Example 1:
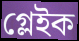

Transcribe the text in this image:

গ্লেইক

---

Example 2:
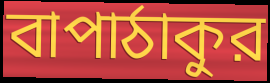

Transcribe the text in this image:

বাপাঠাকুর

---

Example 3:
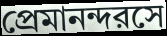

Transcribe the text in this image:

প্রেমানন্দরসে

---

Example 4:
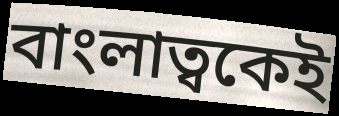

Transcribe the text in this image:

বাংলাত্বকেই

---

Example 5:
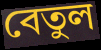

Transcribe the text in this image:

বেতুল